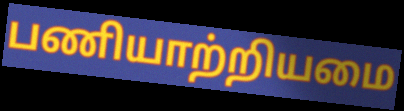
பணியாற்றியமை